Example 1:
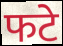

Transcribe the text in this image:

फटे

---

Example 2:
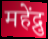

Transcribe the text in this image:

महेंद्रु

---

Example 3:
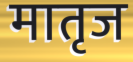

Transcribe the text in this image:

मातृज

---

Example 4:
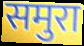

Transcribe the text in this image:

समुरा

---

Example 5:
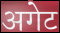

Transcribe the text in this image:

अगेट